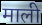
माली